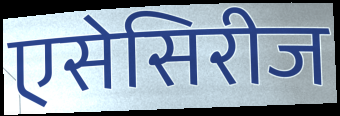
एसेसिरीज